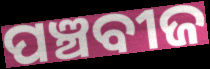
ପଞ୍ଚବୀଜ